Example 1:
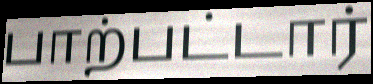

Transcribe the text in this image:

பாற்பட்டார்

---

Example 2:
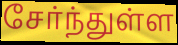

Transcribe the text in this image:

சேர்ந்துள்ள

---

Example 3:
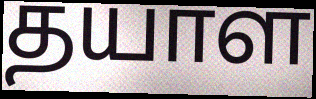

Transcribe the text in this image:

தயாள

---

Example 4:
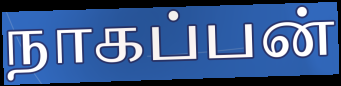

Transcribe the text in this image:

நாகப்பன்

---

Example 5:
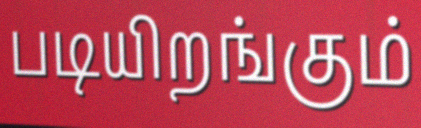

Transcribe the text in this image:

படியிறங்கும்